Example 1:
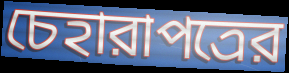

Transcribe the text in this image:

চেহারাপত্রের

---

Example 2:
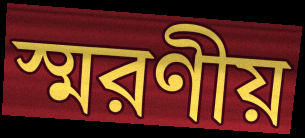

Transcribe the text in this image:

স্মরণীয়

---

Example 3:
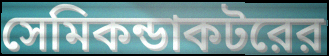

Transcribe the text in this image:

সেমিকন্ডাকটরের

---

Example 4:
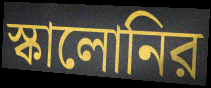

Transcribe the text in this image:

স্কালোনির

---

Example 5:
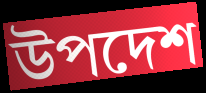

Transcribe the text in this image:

উপদেশ